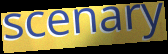
scenary